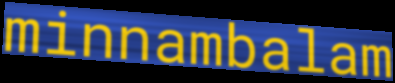
minnambalam